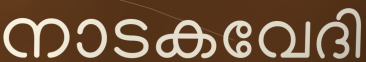
നാടകവേദി